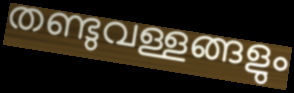
തണ്ടുവള്ളങ്ങളും